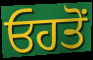
ਓਹਤੋਂ